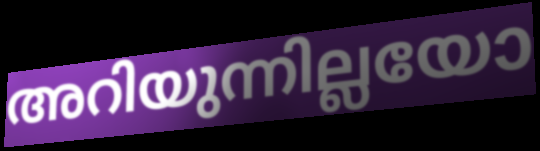
അറിയുന്നില്ലയോ